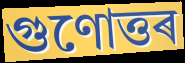
গুণোত্তৰ